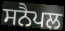
ਸਨੈਪਲ